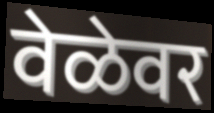
वेळेवर